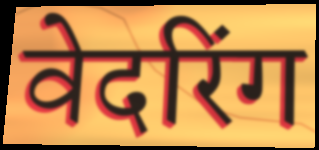
वेदरिंग